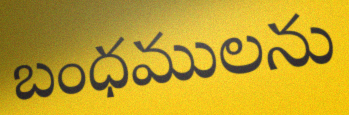
బంధములను